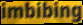
imbibing